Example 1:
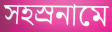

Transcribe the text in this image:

সহস্ৰনামে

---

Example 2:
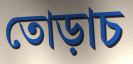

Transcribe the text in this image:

তোড়াচ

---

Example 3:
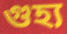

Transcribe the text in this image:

গুহ্য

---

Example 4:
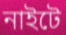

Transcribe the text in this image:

নাইটে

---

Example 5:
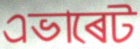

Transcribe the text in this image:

এভাৰেট